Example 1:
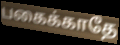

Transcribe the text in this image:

பகைக்காதே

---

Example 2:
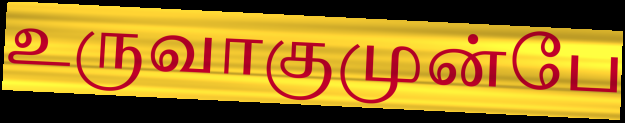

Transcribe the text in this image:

உருவாகுமுன்பே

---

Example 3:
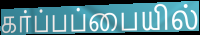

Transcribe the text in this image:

கர்ப்பப்பையில்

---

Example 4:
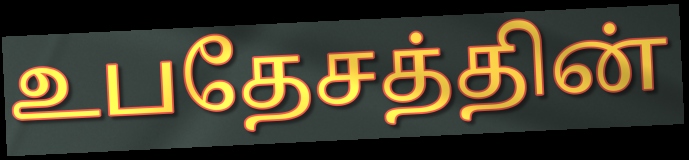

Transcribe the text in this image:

உபதேசத்தின்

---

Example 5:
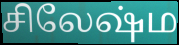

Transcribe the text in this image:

சிலேஷ்ம